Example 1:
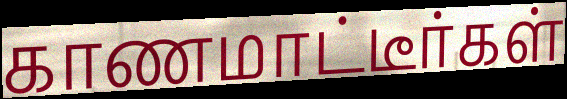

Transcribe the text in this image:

காணமாட்டீர்கள்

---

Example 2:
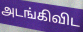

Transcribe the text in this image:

அடங்கிவிட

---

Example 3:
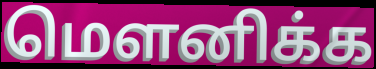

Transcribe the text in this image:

மெளனிக்க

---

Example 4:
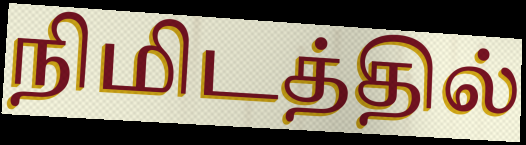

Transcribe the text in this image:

நிமிடத்தில்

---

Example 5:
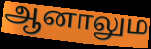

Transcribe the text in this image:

ஆனாலும